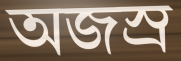
অজস্র